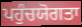
ਪਹੁੰਚਯੋਗਤਾ